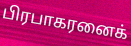
பிரபாகரனைக்